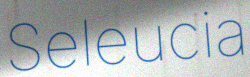
Seleucia